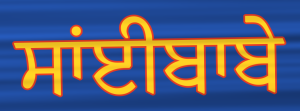
ਸਾਂਈਬਾਬੇ